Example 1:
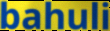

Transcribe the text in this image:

bahuli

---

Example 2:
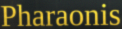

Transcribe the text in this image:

Pharaonis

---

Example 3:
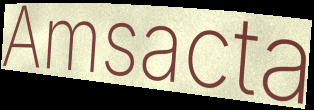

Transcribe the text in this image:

Amsacta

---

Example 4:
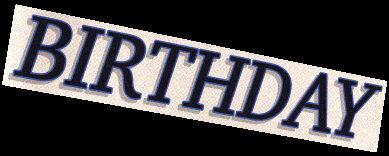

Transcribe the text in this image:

BIRTHDAY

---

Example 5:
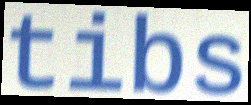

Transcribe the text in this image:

tibs